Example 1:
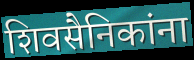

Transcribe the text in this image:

शिवसैनिकांना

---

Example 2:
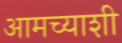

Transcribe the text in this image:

आमच्याशी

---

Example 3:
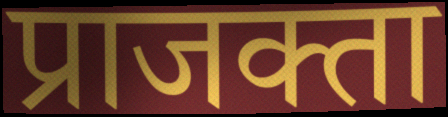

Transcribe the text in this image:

प्राजक्ता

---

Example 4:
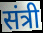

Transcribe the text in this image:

संत्री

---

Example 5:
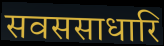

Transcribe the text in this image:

सवससाधारि